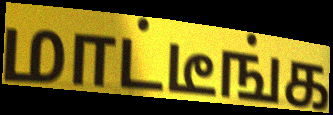
மாட்டீங்க